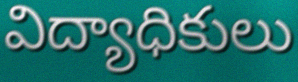
విద్యాధికులు